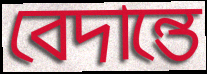
বেদান্তে